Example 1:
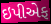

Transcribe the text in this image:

ઇપીએફ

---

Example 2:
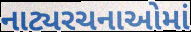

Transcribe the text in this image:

નાટ્યરચનાઓમાં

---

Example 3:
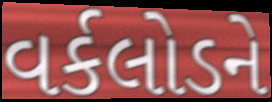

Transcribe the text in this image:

વર્કલોડને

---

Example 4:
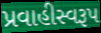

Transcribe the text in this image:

પ્રવાહીસ્વરૂપ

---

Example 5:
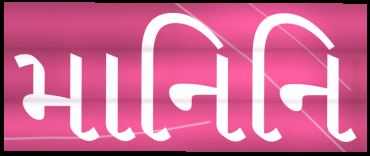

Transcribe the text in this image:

માનિનિ